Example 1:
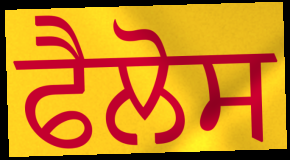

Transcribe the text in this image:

ਫੈਲੋਸ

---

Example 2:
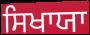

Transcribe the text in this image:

ਸਿਖਾਯਾ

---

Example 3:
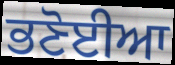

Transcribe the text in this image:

ਭਣੋਈਆ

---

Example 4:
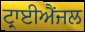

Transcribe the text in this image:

ਟ੍ਰਾਈਐਂਜਲ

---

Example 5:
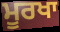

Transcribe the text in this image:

ਮੂਰਖਾ